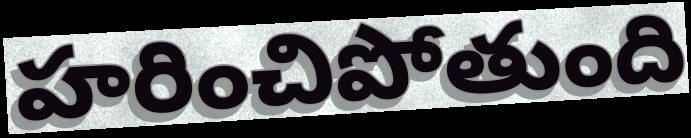
హరించిపోతుంది